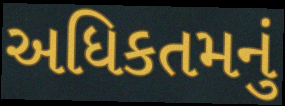
અધિકતમનું